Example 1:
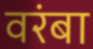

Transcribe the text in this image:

वरंबा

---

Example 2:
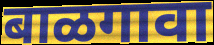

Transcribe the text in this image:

बाळगावा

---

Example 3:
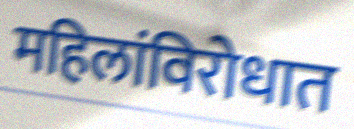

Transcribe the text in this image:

महिलांविरोधात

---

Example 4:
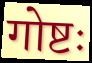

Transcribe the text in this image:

गोष्टः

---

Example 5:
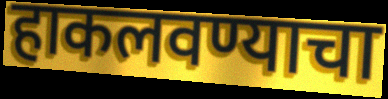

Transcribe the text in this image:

हाकलवण्याचा